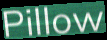
Pillow